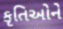
કૃતિઓને